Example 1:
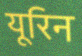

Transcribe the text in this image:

यूरिन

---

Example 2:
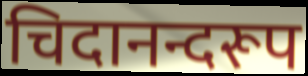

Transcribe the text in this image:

चिदानन्दरूप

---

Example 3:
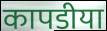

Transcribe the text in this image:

कापडीया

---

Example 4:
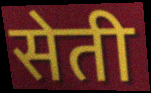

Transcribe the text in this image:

सेती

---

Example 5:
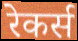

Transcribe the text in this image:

रेकर्स